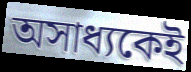
অসাধ্যকেই